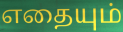
எதையும்